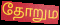
தோறும